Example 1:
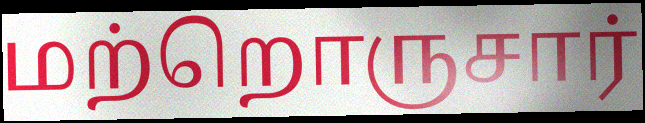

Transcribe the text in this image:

மற்றொருசார்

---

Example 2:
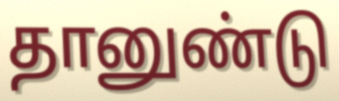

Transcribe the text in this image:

தானுண்டு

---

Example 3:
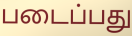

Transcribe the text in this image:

படைப்பது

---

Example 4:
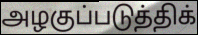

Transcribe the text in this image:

அழகுப்படுத்திக்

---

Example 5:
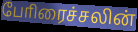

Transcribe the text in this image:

பேரிரைச்சலின்